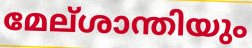
മേല്ശാന്തിയും